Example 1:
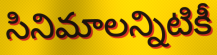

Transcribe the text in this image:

సినిమాలన్నిటికీ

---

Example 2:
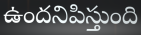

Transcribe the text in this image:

ఉందనిపిస్తుంది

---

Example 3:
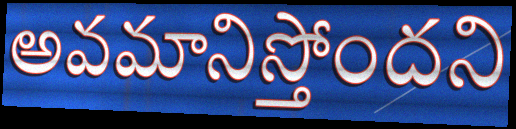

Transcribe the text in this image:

అవమానిస్తోందని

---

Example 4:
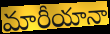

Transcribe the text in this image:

మారీయానా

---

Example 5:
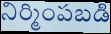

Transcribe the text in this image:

నిర్మింపబడి